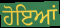
ਹੋਇਆਂ